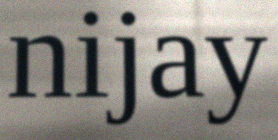
nijay